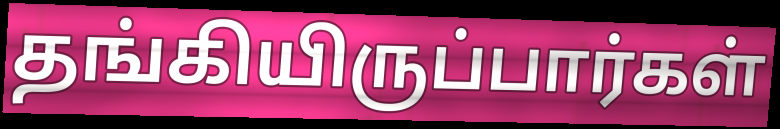
தங்கியிருப்பார்கள்